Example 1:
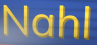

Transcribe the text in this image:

Nahl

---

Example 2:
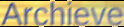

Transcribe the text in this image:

Archieve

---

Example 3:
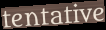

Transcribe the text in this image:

tentative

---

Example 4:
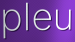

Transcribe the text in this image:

pleu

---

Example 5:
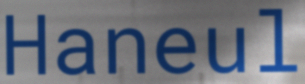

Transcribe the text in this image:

Haneul